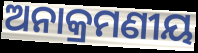
ଅନାକ୍ରମଣୀୟ